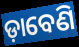
ଡ଼ାବେଣି